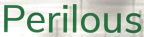
Perilous